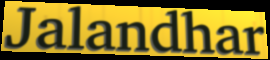
Jalandhar